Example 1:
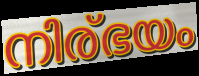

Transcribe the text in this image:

നിര്ഭയം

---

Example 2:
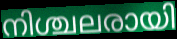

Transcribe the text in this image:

നിശ്ചലരായി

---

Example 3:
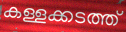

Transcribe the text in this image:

കള്ളക്കടത്ത്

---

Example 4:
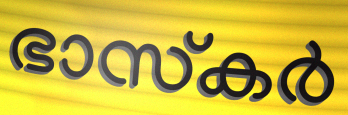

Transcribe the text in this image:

ഭാസ്‌കർ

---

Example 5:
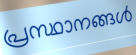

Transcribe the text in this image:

പ്രസ്ഥാനങ്ങൾ